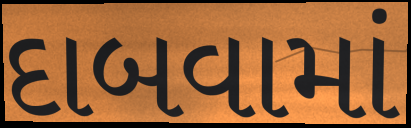
દાબવામાં